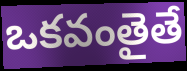
ఒకవంతైతే